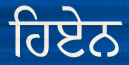
ਹਿਏਨ